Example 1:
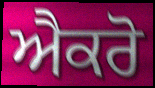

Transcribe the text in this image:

ਐਕਰੋ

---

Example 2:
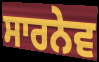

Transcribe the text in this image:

ਸਾਰਨੇਵ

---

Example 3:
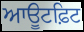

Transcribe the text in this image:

ਆਊਟਫ਼ਿਟ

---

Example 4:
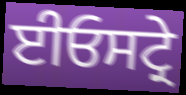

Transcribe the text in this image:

ਈਓਸਟ੍ਰੇ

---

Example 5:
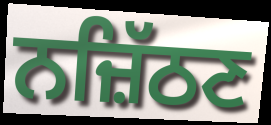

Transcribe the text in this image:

ਨਜ਼ਿੱਠਣ